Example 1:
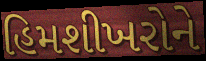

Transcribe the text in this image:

હિમશીખરોને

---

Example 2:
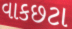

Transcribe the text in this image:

વાકછટા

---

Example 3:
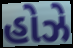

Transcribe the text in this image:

હોઝે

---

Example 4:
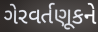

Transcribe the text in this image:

ગેરવર્તણૂકને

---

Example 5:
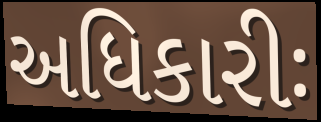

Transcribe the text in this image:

અધિકારીઃ